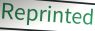
Reprinted